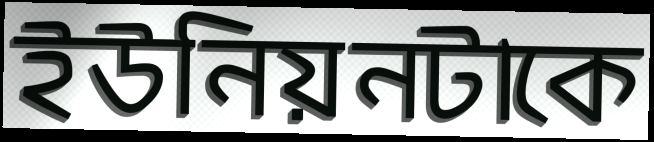
ইউনিয়নটাকে